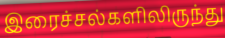
இரைச்சல்களிலிருந்து